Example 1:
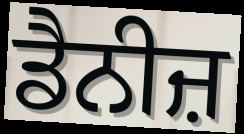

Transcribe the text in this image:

ਡੈਨੀਜ਼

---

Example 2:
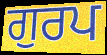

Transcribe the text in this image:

ਗੁਰਪ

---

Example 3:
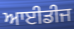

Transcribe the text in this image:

ਆਈਡੀਜ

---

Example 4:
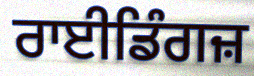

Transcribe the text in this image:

ਰਾਈਡਿੰਗਜ਼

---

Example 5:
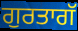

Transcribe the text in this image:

ਗੁਰਤਾਗੱ